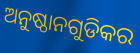
ଅନୁଷ୍ଠାନଗୁଡିକର